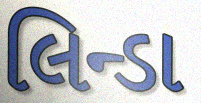
લિન્ડા